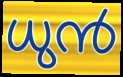
ധുൻ